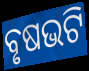
ବୃଷଭଟି